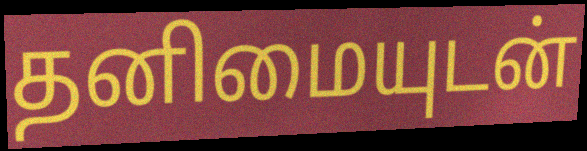
தனிமையுடன்